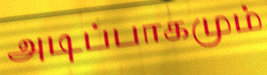
அடிப்பாகமும்